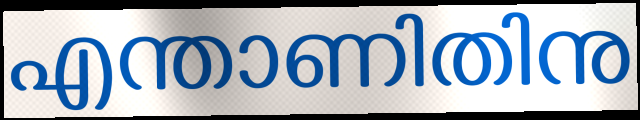
എന്താണിതിനു